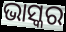
ଭାସ୍କର